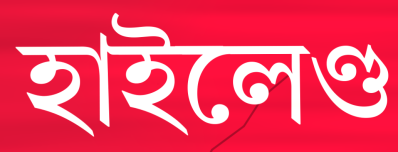
হাইলেণ্ড